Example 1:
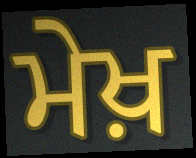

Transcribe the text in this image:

ਮੇਖ਼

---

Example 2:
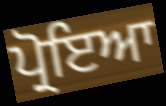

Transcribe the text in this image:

ਪ੍ਰੋਇਆ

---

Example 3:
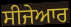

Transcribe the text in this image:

ਸੀਜੇਆਰ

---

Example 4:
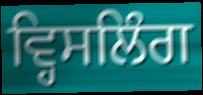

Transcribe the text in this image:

ਵ੍ਹਿਸਲਿੰਗ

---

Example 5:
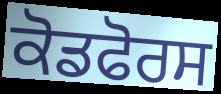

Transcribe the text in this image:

ਕੋਡਫੋਰਸ